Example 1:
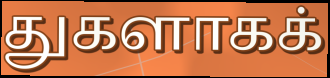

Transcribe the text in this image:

துகளாகக்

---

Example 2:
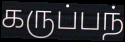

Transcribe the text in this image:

கருப்பந்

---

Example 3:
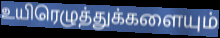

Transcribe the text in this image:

உயிரெழுத்துக்களையும்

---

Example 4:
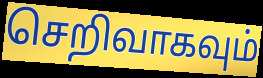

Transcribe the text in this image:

செறிவாகவும்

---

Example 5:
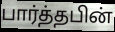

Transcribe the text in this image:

பார்த்தபின்